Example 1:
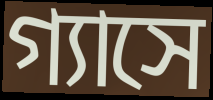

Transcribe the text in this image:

গ্যাসে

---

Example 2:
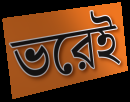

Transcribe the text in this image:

ভরেই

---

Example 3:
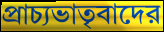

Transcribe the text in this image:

প্রাচ্যভাতৃবাদের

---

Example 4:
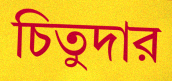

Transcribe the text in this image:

চিতুদার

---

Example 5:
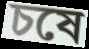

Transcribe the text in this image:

চষে